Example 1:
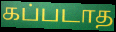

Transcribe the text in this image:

கப்படாத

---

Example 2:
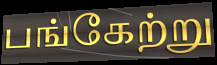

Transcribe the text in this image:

பங்கேற்று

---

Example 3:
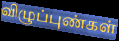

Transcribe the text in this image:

விழுப்புண்கள்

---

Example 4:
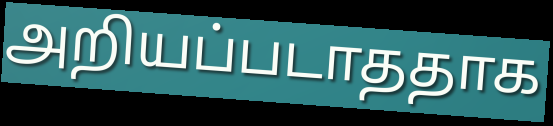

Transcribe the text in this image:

அறியப்படாததாக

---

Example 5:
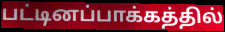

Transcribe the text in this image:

பட்டினப்பாக்கத்தில்